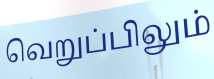
வெறுப்பிலும்